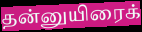
தன்னுயிரைக்